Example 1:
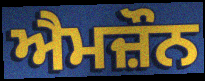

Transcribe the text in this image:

ਐਮਜ਼ੌਨ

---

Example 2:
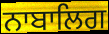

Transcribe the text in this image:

ਨਾਬਾਲਿਗ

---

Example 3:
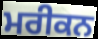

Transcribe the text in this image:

ਮਰੀਕਨ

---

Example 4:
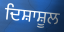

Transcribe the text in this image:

ਦਿਸ਼ਾਸ਼ੂਲ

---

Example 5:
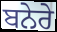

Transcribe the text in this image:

ਬਨੇਰੇ